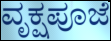
ವೃಕ್ಷಪೂಜೆ